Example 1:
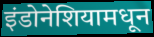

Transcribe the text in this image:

इंडोनेशियामधून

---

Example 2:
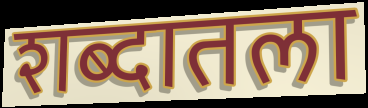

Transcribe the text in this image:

शब्दातला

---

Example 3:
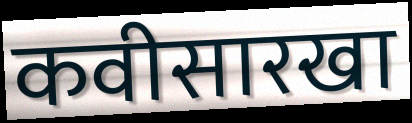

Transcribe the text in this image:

कवीसारखा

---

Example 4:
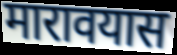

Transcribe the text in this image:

मारावयास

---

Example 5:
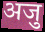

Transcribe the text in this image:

अजु